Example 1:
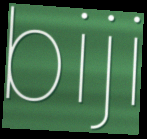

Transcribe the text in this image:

biji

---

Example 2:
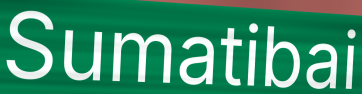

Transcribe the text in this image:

Sumatibai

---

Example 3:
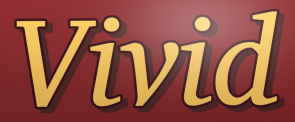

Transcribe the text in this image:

Vivid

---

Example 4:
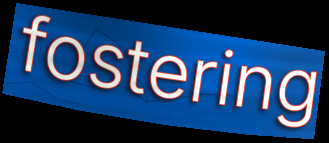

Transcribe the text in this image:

fostering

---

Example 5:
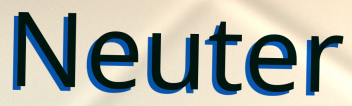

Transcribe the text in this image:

Neuter